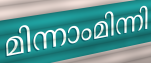
മിന്നാംമിന്നി